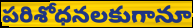
పరిశోధనలకుగానూ